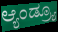
ಆ್ಯಂಡ್ರ್ಯೂ